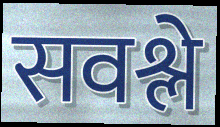
सवश्ले